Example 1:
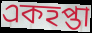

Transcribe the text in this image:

একহপ্তা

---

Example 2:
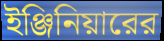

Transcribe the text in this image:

ইঞ্জিনিয়ারের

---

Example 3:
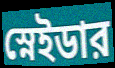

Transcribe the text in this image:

স্নেইডার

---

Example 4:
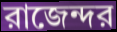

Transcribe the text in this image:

রাজেন্দর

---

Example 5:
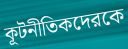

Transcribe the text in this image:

কূটনীতিকদেরকে